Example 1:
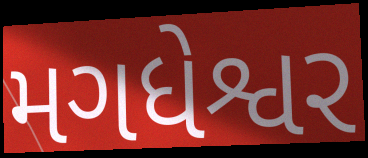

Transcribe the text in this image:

મગધેશ્વર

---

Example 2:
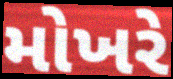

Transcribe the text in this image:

મોખરે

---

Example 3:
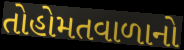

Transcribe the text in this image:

તોહોમતવાળાનો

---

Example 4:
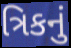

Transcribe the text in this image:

ત્રિકનું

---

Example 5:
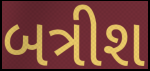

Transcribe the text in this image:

બત્રીશ